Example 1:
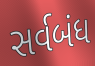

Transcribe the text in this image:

સર્વબંધ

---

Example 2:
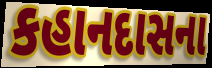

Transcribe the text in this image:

કહાનદાસના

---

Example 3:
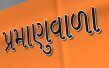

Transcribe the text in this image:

પ્રમાણુવાળા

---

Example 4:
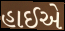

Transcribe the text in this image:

હાઈએ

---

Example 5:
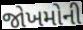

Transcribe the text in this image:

જોખમોની